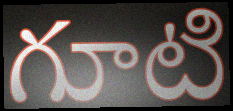
గూటి